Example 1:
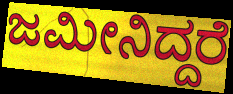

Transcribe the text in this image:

ಜಮೀನಿದ್ದರೆ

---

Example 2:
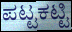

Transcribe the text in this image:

ಪಟ್ಟಕಟ್ಟಿ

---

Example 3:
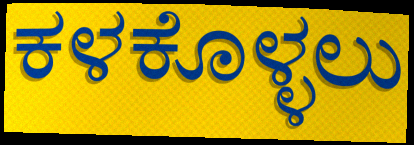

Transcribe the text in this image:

ಕಳಕೊಳ್ಳಲು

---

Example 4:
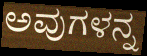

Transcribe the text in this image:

ಅವುಗಳನ್ನ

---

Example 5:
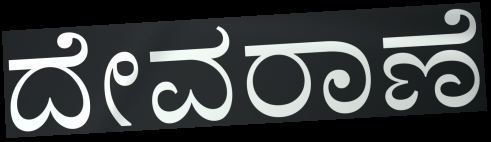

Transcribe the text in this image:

ದೇವರಾಣೆ